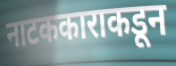
नाटककाराकडून